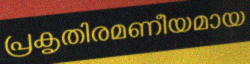
പ്രകൃതിരമണീയമായ